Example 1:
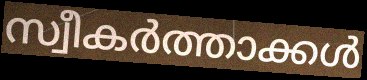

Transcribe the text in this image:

സ്വീകർത്താക്കൾ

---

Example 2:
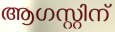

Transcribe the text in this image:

ആഗസ്റ്റിന്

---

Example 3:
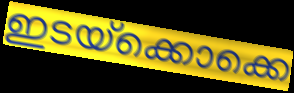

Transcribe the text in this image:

ഇടയ്‌ക്കൊക്കെ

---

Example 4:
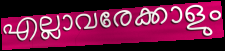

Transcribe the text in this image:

എല്ലാവരേക്കാളും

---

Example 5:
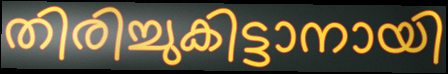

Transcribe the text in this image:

തിരിച്ചുകിട്ടാനായി